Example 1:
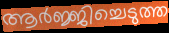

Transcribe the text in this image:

ആർജ്ജിച്ചെടുത്ത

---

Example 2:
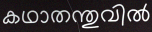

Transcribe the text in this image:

കഥാതന്തുവിൽ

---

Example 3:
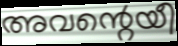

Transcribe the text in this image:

അവന്റെയീ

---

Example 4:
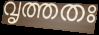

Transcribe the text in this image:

വൃത്തതഃ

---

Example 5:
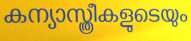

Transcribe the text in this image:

കന്യാസ്ത്രീകളുടെയും